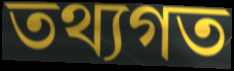
তথ্যগত